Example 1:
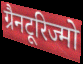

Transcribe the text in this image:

ग्रैनटूरिज्मो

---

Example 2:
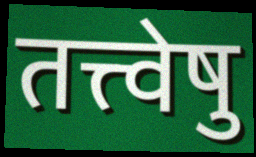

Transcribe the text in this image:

तत्त्वेषु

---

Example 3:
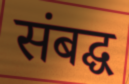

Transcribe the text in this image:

संबद्घ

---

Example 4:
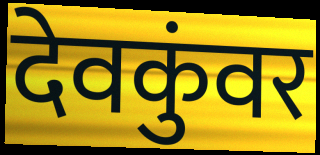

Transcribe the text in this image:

देवकुंवर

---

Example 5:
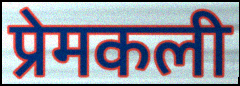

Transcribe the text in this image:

प्रेमकली